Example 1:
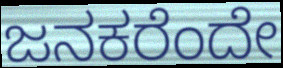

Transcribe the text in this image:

ಜನಕರೆಂದೇ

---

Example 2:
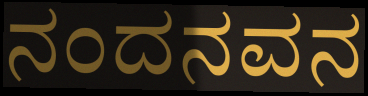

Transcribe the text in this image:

ನಂದನವನ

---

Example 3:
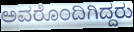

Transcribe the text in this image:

ಅವರೊಂದಿಗಿದ್ದರು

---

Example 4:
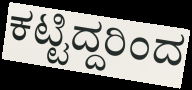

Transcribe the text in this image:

ಕಟ್ಟಿದ್ದರಿಂದ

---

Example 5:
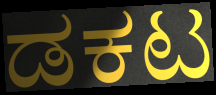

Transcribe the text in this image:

ಡಕಟ